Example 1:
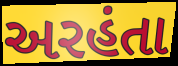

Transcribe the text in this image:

અરહંતા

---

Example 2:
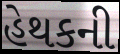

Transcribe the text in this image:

હેથકની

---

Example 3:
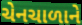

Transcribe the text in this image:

ચેનચાળાને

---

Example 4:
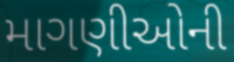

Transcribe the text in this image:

માગણીઓની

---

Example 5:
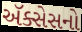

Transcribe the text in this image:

ઍક્સેસનો